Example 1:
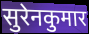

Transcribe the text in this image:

सुरेनकुमार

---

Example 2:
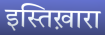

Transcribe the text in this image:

इस्तिख़ारा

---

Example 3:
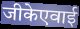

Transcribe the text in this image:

जीकेएवाई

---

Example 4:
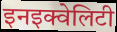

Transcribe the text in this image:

इनइक्वेलिटी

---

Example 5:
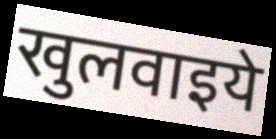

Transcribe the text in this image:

खुलवाइये